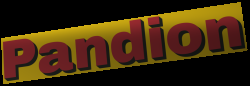
Pandion